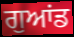
ਗੁਆਂਡ